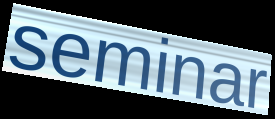
seminar